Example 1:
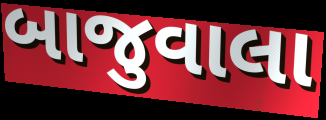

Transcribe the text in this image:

બાજુવાલા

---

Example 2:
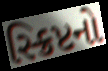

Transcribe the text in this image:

સ્ક્રિપ્ટનો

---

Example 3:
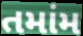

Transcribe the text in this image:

તમાંમ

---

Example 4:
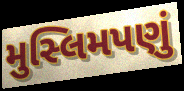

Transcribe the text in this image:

મુસ્લિમપણું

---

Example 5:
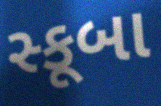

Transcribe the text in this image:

સ્કૂબા